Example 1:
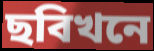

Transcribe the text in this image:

ছবিখনে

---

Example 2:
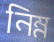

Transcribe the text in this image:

নিম্ন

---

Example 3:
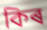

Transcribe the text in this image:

কিৰ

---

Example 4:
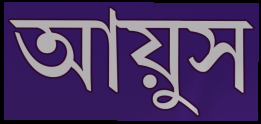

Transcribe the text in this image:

আয়ুস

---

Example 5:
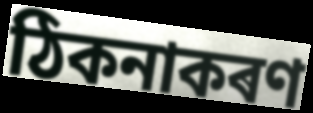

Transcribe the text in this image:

ঠিকনাকৰণ